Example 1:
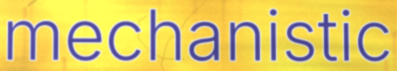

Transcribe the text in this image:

mechanistic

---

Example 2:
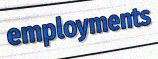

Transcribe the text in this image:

employments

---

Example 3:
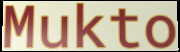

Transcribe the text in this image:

Mukto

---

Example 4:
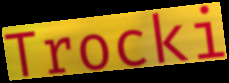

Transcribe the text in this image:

Trocki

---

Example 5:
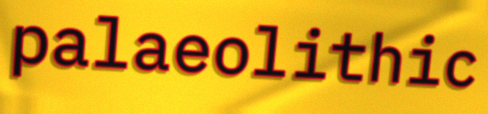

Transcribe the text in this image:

palaeolithic